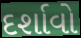
દર્શાવો